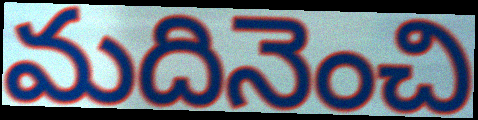
మదినెంచి